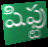
షిఫ్టు